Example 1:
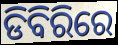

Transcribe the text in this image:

ଡିବିରିରେ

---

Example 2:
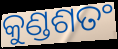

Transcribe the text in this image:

କୁଣ୍ଡଶତଂ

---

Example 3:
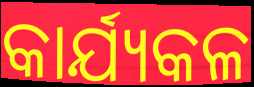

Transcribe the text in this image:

କାର୍ଯ୍ୟକଳ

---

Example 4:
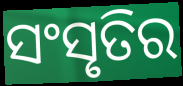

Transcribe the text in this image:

ସଂସୃତିର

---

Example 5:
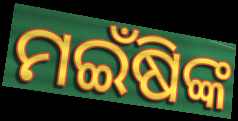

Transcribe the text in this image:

ମଇଁଷିଙ୍କ